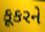
કૂકરને